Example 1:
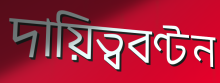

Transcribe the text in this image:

দায়িত্ববণ্টন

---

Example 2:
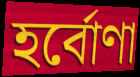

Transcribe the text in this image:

হর্বোণা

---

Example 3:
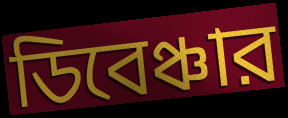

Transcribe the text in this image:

ডিবেঞ্চার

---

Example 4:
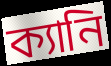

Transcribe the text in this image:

ক্যানি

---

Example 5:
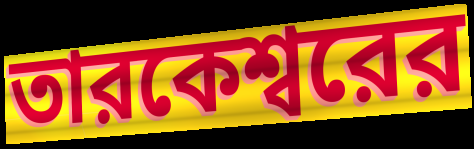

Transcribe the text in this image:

তারকেশ্বরের